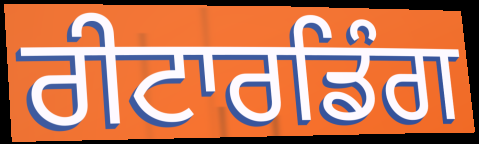
ਰੀਟਾਰਡਿੰਗ